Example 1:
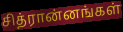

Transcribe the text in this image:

சித்ரான்னங்கள்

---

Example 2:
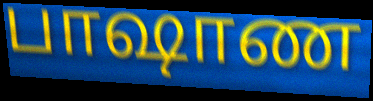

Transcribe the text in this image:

பாஷாண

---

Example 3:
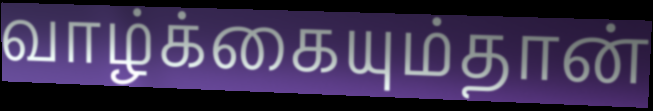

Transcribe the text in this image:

வாழ்க்கையும்தான்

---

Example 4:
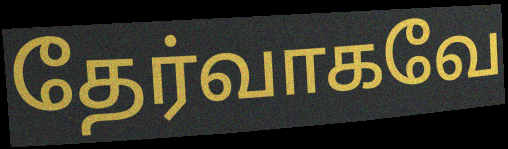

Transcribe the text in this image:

தேர்வாகவே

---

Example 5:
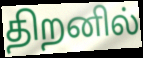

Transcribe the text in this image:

திறனில்